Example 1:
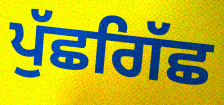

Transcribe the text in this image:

ਪੁੱਛਗਿੱਛ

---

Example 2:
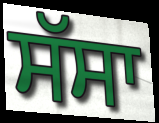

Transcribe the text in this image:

ਸੱਸਾ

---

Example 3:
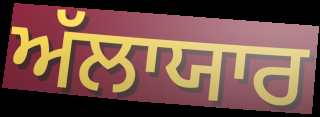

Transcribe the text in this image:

ਅੱਲਾਯਾਰ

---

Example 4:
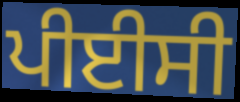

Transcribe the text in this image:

ਪੀਈਸੀ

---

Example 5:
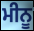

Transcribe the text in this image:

ਮੀਨੂ